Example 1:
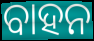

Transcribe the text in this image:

ବାହନ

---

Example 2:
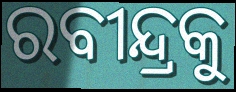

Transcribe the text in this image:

ରବୀନ୍ଦ୍ରକୁ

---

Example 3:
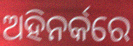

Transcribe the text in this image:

ଅହିନର୍କରେ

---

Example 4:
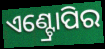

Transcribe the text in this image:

ଏଣ୍ଟ୍ରୋପିର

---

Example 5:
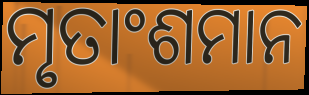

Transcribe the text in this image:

ମୃତାଂଶମାନ